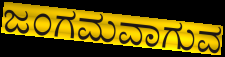
ಜಂಗಮವಾಗುವ